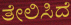
ತೇಲಿಸಿದೆ